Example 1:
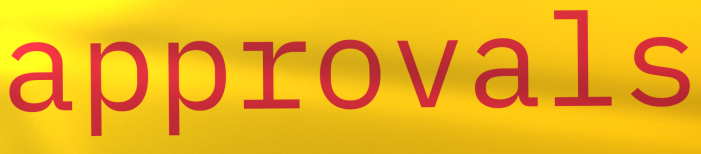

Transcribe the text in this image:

approvals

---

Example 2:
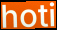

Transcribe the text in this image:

hoti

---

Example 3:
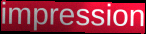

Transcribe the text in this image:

impression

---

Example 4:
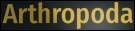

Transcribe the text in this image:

Arthropoda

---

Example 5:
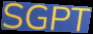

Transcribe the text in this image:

SGPT